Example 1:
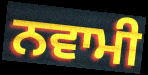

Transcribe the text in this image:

ਨਵਾਮੀ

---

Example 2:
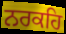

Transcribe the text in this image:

ਨਰਕਹਿ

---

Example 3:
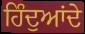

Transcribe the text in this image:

ਹਿੰਦੁਆਂਦੇ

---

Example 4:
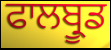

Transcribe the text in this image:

ਫਾਲਬ੍ਰੂਡ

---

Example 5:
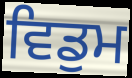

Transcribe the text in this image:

ਵਿਡੁਮ